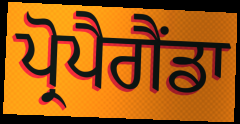
ਪ੍ਰੋਪੈਗੈਂਡਾ